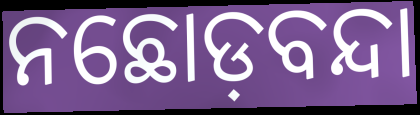
ନଛୋଡ଼ବନ୍ଦା